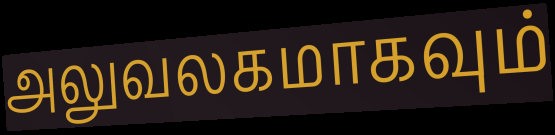
அலுவலகமாகவும்